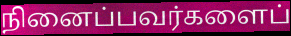
நினைப்பவர்களைப்